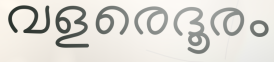
വളരെദൂരം